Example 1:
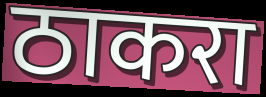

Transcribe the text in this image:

ठाकरा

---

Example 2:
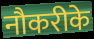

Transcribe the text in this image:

नौकरीके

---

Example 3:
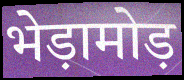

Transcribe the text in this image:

भेड़ामोड़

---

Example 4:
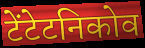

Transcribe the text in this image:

टेंटेटनिकोव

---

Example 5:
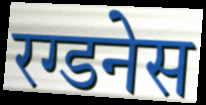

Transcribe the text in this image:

रग्डनेस